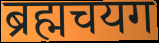
ब्रह्मचयग